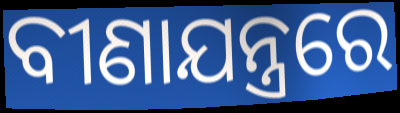
ବୀଣାଯନ୍ତ୍ରରେ